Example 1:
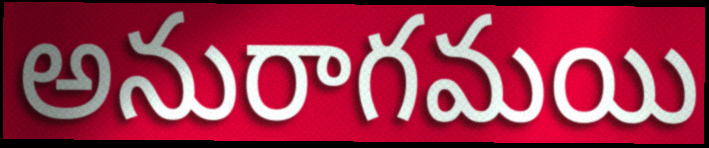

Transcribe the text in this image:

అనురాగమయి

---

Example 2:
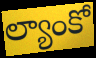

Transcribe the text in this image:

ల్యాంకో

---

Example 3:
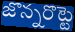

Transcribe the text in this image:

జొన్నరొట్టె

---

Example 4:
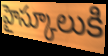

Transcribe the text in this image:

హైస్కూలుకి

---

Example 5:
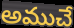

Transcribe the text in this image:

అముచే